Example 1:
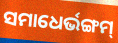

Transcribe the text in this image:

ସମାଧେର୍ଭଙ୍ଗମ୍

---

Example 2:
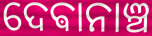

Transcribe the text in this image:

ଦେଵାନାଞ୍ଚ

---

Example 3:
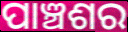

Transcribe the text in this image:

ପାଞ୍ଚଶର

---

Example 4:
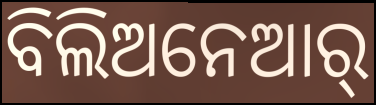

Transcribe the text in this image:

ବିଲିଅନେଆର୍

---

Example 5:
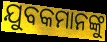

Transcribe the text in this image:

ଯୁବକମାନଙ୍କୁ